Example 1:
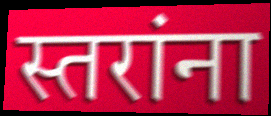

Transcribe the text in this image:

स्तरांना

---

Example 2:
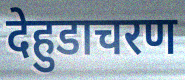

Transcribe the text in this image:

देहुडाचरण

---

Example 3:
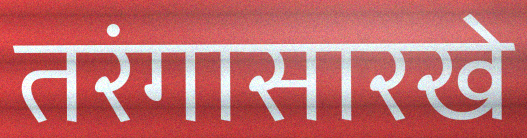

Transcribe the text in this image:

तरंगासारखे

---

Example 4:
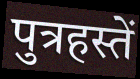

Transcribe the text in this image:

पुत्रहस्तें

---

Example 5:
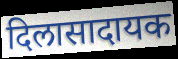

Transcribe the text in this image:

दिलासादायक